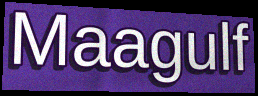
Maagulf